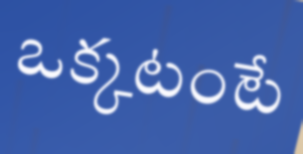
ఒక్కటంటే